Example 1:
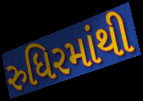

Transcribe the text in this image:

રુધિરમાંથી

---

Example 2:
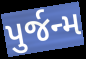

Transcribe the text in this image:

પુર્જન્મ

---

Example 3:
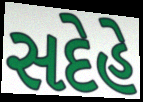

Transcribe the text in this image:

સદેહે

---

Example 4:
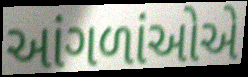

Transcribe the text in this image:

આંગળાંઓએ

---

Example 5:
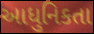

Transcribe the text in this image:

આધુનિકતા